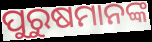
ପୁରୁଷମାନଙ୍କ